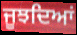
ਜੂਝਦਿਆਂ